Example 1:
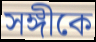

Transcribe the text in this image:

সঙ্গীকে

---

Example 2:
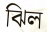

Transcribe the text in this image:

ঝিল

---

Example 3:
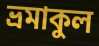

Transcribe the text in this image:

ভ্রমাকুল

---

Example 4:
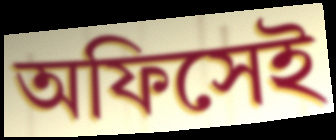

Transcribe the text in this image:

অফিসেই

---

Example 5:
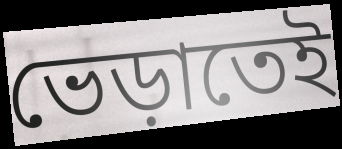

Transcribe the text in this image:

ভেড়াতেই